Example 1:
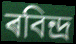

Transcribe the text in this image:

ৰবিন্দ্ৰ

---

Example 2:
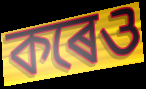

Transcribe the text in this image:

কৰেও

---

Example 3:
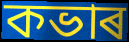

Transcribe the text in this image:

কভাৰ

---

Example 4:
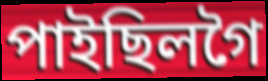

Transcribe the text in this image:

পাইছিলগৈ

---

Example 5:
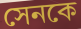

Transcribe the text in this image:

সেনকে